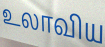
உலாவிய